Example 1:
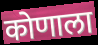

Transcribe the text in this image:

कोणाला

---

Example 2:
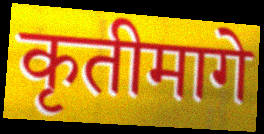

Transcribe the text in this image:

कृतीमागे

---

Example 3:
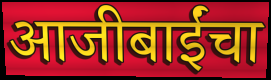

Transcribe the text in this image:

आजीबाईंचा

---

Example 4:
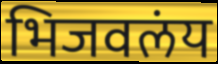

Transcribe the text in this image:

भिजवलंय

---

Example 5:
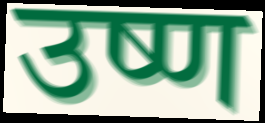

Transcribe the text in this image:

उष्ण